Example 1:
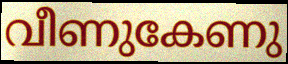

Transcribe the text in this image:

വീണുകേണു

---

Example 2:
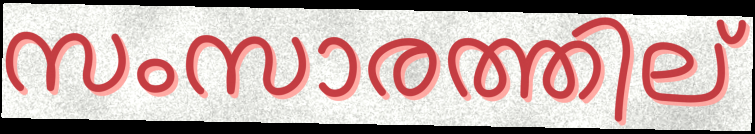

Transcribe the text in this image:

സംസാരത്തില്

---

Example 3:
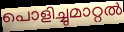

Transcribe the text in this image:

പൊളിച്ചുമാറ്റൽ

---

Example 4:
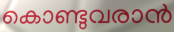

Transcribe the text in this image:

കൊണ്ടുവരാൻ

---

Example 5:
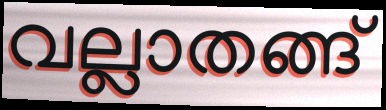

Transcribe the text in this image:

വല്ലാതങ്ങ്